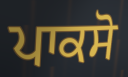
ਪਾਕਸੋ